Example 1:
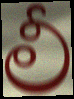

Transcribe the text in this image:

లీ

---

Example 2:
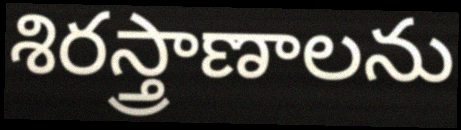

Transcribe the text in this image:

శిరస్త్రాణాలను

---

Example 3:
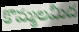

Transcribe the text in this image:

కొమ్మలమీద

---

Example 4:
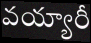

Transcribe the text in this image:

వయ్యారీ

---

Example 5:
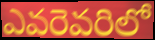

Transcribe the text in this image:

ఎవరెవరిలో